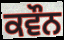
ਕਵੌਨ